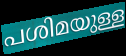
പശിമയുള്ള